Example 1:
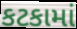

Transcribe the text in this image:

કટકામાં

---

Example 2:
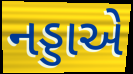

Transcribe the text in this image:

નડ્ડાએ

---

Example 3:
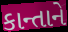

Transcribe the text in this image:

કાન્તાને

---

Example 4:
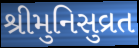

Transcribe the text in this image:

શ્રીમુનિસુવ્રત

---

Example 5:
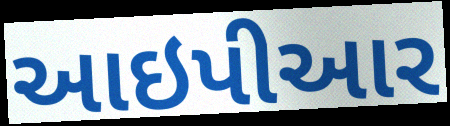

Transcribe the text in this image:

આઇપીઆર